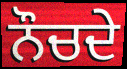
ਨੌਚਦੇ